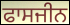
ਫਾਸਜੀਨ